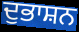
ਦੁਭਾਸ਼ਨ